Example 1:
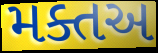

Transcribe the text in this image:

મક્તઅ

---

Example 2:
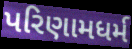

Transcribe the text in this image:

પરિણામધર્મ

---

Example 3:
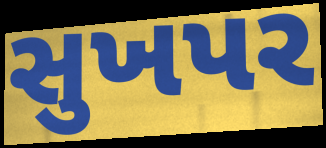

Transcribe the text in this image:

સુખપર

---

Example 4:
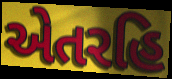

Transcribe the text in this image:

એતરહિ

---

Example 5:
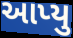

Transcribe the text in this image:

આપ્યુ